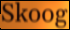
Skoog